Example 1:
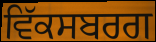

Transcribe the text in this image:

ਵਿੱਕਸਬਰਗ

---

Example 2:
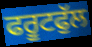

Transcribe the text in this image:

ਫਰੂਟਫੁੱਲ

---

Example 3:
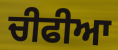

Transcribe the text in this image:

ਚੀਫੀਆ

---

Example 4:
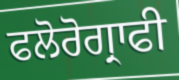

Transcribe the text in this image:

ਫਲੋਰੋਗ੍ਰਾਫੀ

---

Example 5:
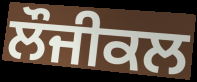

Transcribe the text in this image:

ਲੌਜੀਕਲ